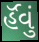
ર્હૅવું